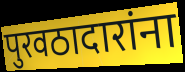
पुरवठादारांना